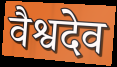
वैश्वदेव